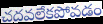
చదవలేకపోవడం